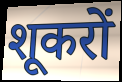
शूकरों